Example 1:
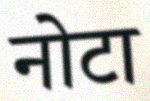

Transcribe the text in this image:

नोटा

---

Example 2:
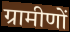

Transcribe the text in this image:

ग्रामीणों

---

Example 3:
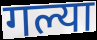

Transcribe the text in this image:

गल्या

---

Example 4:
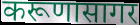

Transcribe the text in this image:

करूणासागर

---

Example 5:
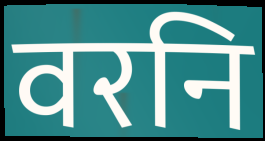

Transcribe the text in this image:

वरनि